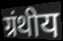
ग्रंथीय